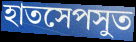
হাতসেপসুত